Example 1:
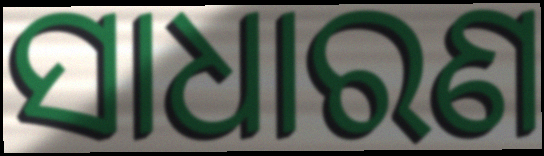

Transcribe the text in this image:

ସାଧାରଣ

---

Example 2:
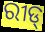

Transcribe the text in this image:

ରୀଡ୍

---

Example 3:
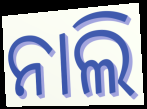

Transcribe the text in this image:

ନାଲି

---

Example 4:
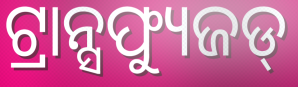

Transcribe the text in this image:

ଟ୍ରାନ୍ସଫ୍ୟୁଜଡ୍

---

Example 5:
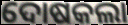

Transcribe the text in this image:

ଦୋଷକଲା